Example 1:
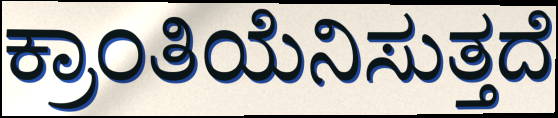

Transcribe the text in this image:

ಕ್ರಾಂತಿಯೆನಿಸುತ್ತದೆ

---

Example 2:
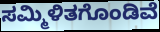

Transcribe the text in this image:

ಸಮ್ಮಿಳಿತಗೊಂಡಿವೆ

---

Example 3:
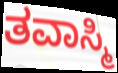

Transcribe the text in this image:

ತವಾಸ್ಮಿ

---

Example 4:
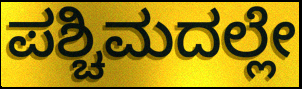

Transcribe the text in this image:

ಪಶ್ಚಿಮದಲ್ಲೇ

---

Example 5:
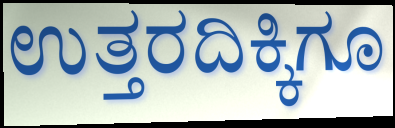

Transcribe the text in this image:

ಉತ್ತರದಿಕ್ಕಿಗೂ